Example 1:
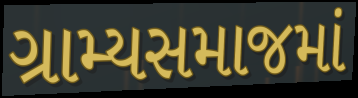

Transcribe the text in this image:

ગ્રામ્યસમાજમાં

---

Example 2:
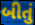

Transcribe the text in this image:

બીતું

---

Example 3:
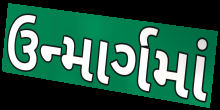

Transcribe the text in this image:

ઉન્માર્ગમાં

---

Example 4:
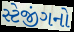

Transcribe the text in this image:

સ્ટેજીંગનો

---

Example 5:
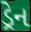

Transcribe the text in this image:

ડ્રેન